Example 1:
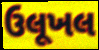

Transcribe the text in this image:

ઉલૂખલ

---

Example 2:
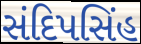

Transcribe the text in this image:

સંદિપસિંહ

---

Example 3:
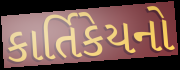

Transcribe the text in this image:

કાર્તિકેયનો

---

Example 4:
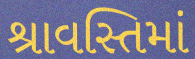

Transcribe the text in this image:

શ્રાવસ્તિમાં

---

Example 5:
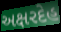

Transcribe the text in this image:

અક્ષરદેહ